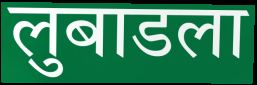
लुबाडला